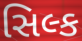
સિલ્ક